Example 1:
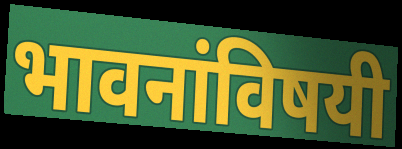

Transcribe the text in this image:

भावनांविषयी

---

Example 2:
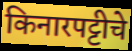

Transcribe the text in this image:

किनारपट्टीचे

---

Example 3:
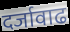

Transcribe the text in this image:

दर्जावाढ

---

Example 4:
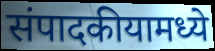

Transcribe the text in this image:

संपादकीयामध्ये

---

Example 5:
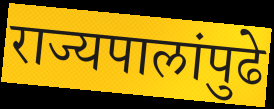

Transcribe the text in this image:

राज्यपालांपुढे